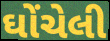
ઘોંચેલી